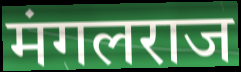
मंगलराज